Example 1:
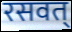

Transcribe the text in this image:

रसवत्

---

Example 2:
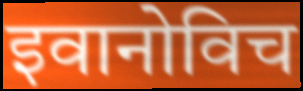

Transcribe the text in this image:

इवानोविच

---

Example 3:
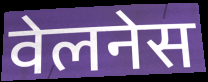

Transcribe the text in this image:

वेलनेस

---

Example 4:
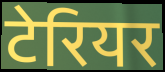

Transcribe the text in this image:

टेरियर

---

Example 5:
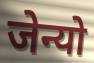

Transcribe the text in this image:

जेन्यो